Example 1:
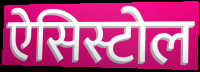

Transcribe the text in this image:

ऐसिस्टोल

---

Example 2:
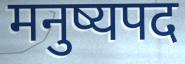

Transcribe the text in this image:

मनुष्यपद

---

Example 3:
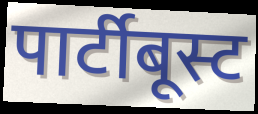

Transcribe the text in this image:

पार्टीबूस्ट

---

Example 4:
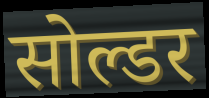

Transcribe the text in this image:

सोल्डर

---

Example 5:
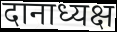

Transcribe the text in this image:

दानाध्यक्ष